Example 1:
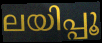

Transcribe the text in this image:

ലയിപ്പൂ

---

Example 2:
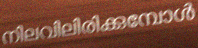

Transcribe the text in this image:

നിലവിലിരിക്കുമ്പോൾ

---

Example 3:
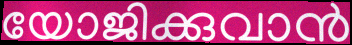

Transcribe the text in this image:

യോജിക്കുവാൻ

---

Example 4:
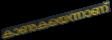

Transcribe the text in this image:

കാണുകയെന്നാണ്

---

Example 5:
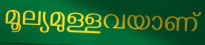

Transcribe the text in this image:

മൂല്യമുള്ളവയാണ്